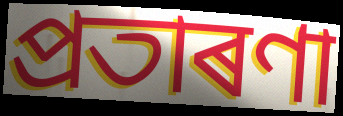
প্ৰতাৰণা